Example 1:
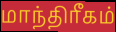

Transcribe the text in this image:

மாந்திரீகம்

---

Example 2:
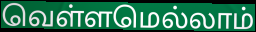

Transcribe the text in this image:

வெள்ளமெல்லாம்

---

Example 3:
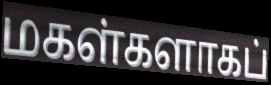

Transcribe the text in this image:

மகள்களாகப்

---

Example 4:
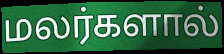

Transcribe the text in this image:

மலர்களால்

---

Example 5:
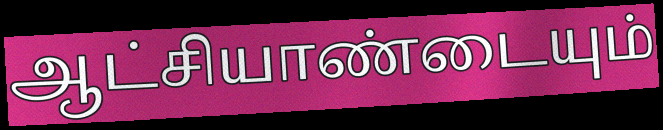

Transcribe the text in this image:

ஆட்சியாண்டையும்